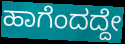
ಹಾಗೆಂದದ್ದೇ